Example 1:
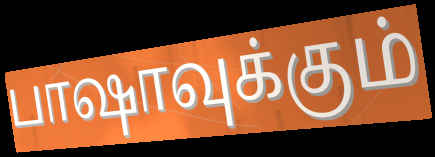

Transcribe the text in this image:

பாஷாவுக்கும்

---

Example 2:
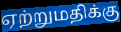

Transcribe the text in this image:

ஏற்றுமதிக்கு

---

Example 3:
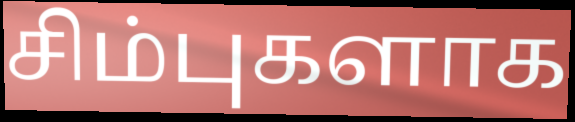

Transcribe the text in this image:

சிம்புகளாக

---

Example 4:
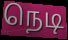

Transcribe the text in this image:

நெடி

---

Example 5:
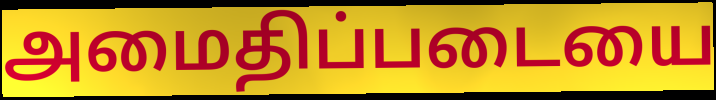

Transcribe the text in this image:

அமைதிப்படையை